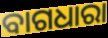
ବାଗଧାରା